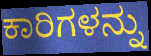
ಕಾರಿಗಳನ್ನು